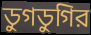
ডুগডুগির